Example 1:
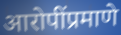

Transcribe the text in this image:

आरोपींप्रमाणे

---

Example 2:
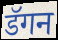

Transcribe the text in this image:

डॅगन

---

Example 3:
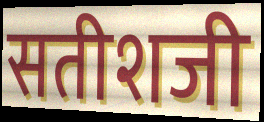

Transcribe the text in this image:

सतीशजी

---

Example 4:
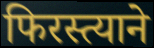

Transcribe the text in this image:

फिरस्त्याने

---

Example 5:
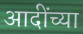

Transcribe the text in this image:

आदींच्या